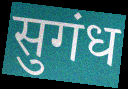
सुगंध